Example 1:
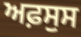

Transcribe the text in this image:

ਅਫ਼ਸੁਸ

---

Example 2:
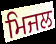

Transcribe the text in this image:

ਮਿਜਲ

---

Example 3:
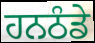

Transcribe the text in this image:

ਹਨਠੰਡੇ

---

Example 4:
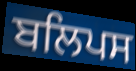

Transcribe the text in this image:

ਬਲਿਪਸ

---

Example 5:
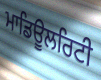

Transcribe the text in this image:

ਮਾਡਿਊਲਰਿਟੀ